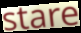
stare